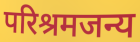
परिश्रमजन्य